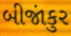
બીજાંકુર